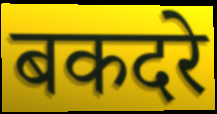
बकदरे